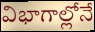
విభాగాల్లోనే